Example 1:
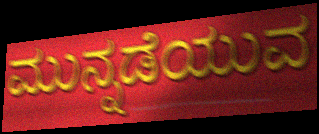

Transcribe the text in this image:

ಮುನ್ನಡೆಯುವ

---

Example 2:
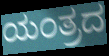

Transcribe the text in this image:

ಯಂತ್ರದ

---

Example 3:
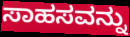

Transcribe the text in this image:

ಸಾಹಸವನ್ನು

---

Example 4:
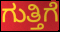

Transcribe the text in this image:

ಗುತ್ತಿಗೆ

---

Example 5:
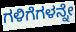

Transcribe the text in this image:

ಗಳಿಗೆಗಳನ್ನೇ